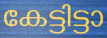
കേട്ടിട്ടാ